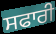
ਸਫਾਰੀ